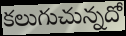
కలుగుచున్నదో